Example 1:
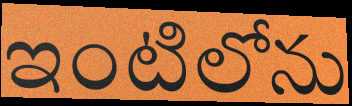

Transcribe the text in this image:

ఇంటిలోను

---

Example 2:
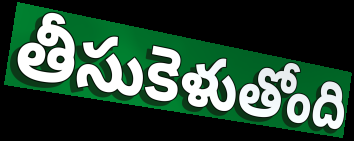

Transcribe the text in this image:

తీసుకెళుతోంది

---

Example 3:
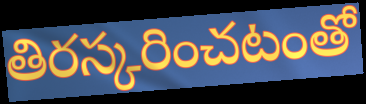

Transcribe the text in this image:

తిరస్కరించటంతో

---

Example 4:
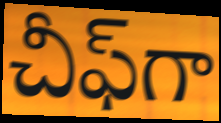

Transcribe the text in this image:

చీఫ్‌గా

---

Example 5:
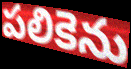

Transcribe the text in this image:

పలికెను